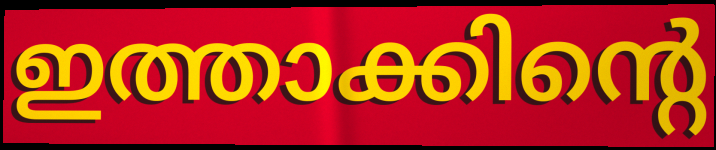
ഇത്താക്കിന്റെ